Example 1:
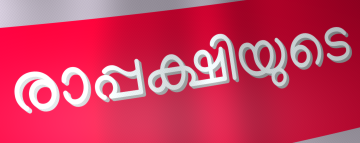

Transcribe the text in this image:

രാപ്പക്ഷിയുടെ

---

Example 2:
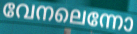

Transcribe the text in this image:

വേനലെന്നോ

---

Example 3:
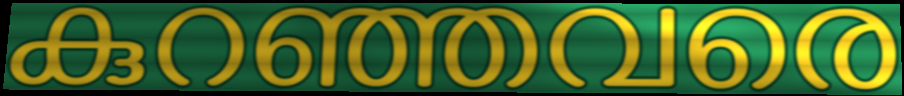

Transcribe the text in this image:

കുറഞ്ഞവരെ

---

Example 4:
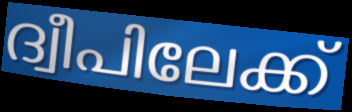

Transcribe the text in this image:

ദ്വീപിലേക്ക്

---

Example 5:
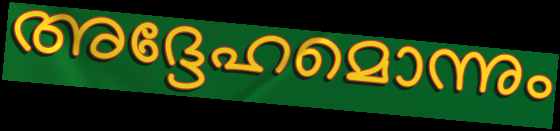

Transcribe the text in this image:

അദ്ദേഹമൊന്നും